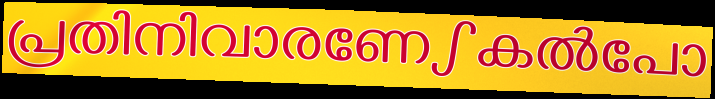
പ്രതിനിവാരണേഽകൽപോ